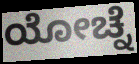
ಯೋಚ್ನೆ